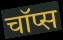
चॉप्स